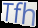
Tfh